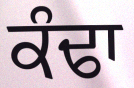
ਕੰਢਾ